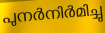
പുനർനിർമിച്ചു